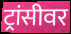
ट्रांसीवर